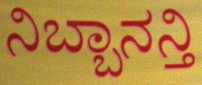
ನಿಬ್ಬಾನನ್ತಿ